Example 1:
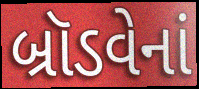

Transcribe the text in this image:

બ્રૉડવેનાં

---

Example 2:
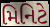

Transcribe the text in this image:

મિનિટે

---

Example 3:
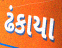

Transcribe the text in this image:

ઢંકાયા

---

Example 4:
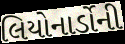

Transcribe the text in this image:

લિયોનાર્ડોની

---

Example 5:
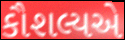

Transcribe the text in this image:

કૌશલ્યએ